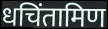
धचिंतामिण